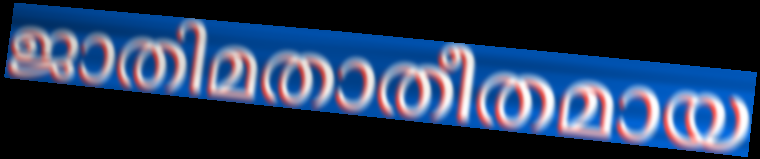
ജാതിമതാതീതമായ